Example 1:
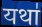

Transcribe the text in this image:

यथा॑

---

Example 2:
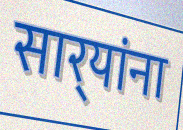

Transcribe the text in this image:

सार्‍यांना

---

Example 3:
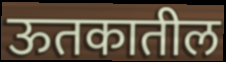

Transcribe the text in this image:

ऊतकातील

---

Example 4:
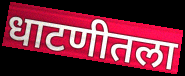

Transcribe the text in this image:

धाटणीतला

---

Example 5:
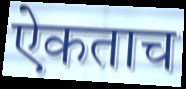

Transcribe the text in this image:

ऐकताच